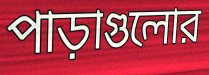
পাড়াগুলোর